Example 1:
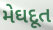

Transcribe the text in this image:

મેઘદૂત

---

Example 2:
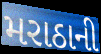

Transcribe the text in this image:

મરાઠાની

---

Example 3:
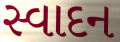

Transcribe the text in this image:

સ્વાદન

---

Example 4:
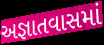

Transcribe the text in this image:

અજ્ઞાતવાસમાં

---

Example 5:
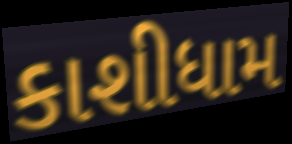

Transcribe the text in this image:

કાશીધામ